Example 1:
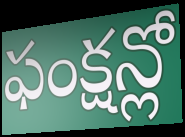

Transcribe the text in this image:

ఫంక్షన్లో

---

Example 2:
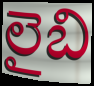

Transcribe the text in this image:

లైబి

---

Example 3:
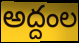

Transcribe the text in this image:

అద్దంల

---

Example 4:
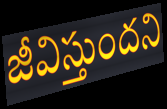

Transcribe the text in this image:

జీవిస్తుందని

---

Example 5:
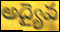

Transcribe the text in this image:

అద్యైవ